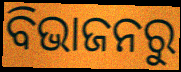
ବିଭାଜନରୁ